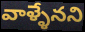
వాళ్ళేనని